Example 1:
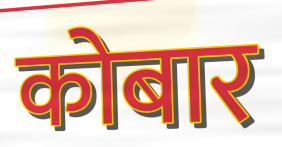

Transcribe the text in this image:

कोबार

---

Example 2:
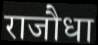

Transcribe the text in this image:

राजौधा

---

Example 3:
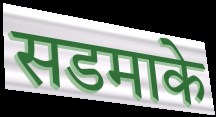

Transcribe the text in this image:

सडमाके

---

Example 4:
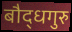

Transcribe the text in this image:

बौद्धगुरु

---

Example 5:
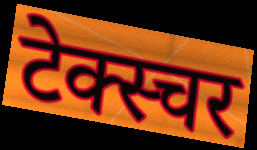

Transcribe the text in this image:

टेक्स्चर